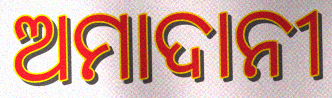
ଅମାଦାନୀ